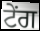
ਟੇਂਗ